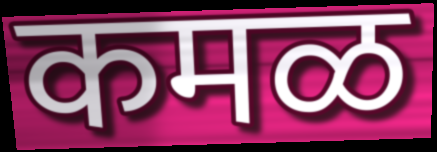
कमळ